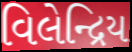
વિલેન્દ્રિય